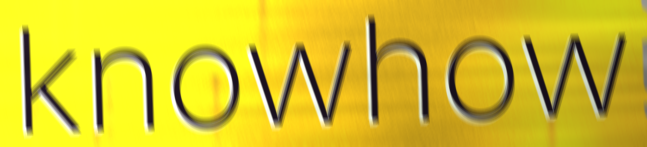
knowhow